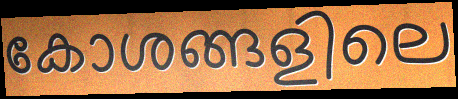
കോശങ്ങളിലെ